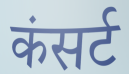
कंसर्ट